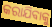
କରାଯିବାକୁ